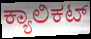
ಕ್ಯಾಲಿಕಟ್